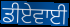
ਡੀਏਵਾਈ